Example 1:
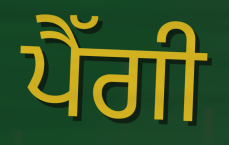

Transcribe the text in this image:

ਪੈੱਗੀ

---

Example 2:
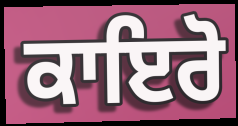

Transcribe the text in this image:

ਕਾਇਰੋ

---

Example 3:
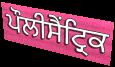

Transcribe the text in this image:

ਪੌਲੀਸੈਂਟ੍ਰਿਕ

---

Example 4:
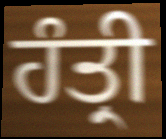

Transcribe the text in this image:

ਹੰਤ੍ਰੀ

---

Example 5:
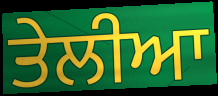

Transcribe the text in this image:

ਤੇਲੀਆ